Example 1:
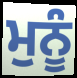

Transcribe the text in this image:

ਮੁਨੂੰ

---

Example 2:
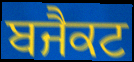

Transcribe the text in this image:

ਬਜੈਕਟ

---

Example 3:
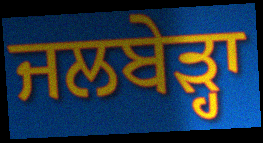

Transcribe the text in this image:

ਜਲਬੇੜ੍ਹਾ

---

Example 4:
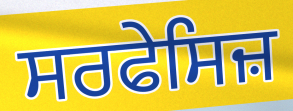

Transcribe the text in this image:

ਸਰਫੇਸਿਜ਼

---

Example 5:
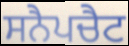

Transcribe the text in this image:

ਸਨੈਪਚੈਟ